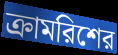
ক্রামরিশের